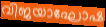
വിജയാഘോഷ